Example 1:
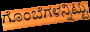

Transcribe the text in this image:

ಗೊಂಬೆಗಳನ್ನಿಟ್ಟು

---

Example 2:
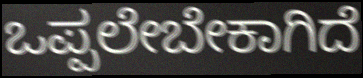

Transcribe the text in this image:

ಒಪ್ಪಲೇಬೇಕಾಗಿದೆ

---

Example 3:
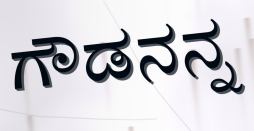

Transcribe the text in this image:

ಗೌಡನನ್ನ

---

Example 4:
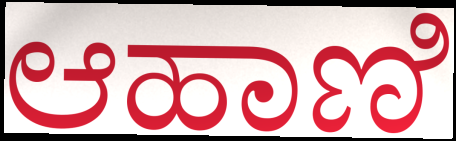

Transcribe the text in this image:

ಆಹಾಣಿ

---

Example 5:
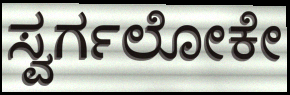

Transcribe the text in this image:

ಸ್ವರ್ಗಲೋಕೇ